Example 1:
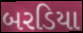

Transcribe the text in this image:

બરડિયા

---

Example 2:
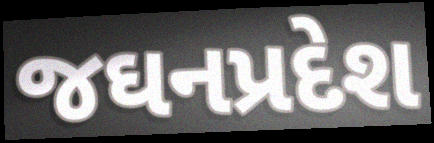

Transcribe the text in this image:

જઘનપ્રદેશ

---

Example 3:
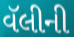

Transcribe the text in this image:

વૅલીની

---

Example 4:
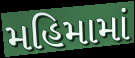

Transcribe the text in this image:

મહિમામાં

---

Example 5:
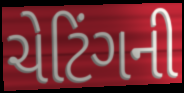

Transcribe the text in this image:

ચેટિંગની